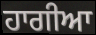
ਹਾਗੀਆ